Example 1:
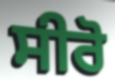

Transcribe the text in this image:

ਸੀਰੋ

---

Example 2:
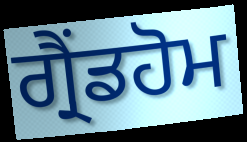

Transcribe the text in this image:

ਗ੍ਰੈਂਡਹੋਮ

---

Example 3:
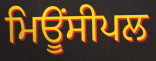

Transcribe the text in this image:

ਮਿਊਂਸੀਪਲ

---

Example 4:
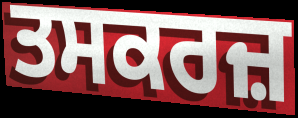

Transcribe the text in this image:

ਤਸਕਰਜ਼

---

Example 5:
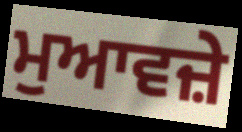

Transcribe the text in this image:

ਮੁਆਵਜ਼ੇ